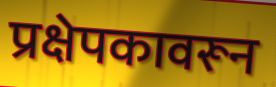
प्रक्षेपकावरून